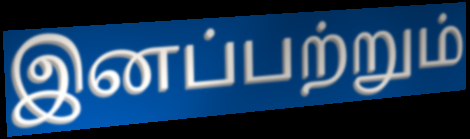
இனப்பற்றும்